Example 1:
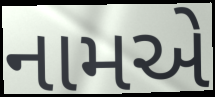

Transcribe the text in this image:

નામએ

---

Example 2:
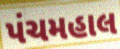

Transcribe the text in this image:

પંચમહાલ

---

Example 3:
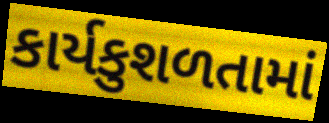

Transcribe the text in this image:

કાર્યકુશળતામાં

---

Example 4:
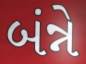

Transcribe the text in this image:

બંન્ને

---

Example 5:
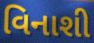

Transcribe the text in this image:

વિનાશી